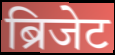
ब्रिजेट